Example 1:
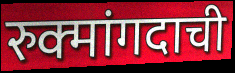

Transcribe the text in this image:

रुक्मांगदाची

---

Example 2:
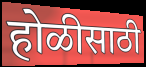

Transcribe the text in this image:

होळीसाठी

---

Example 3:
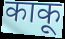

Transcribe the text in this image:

काकू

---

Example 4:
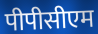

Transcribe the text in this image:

पीपीसीएम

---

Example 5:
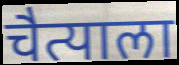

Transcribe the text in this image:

चैत्याला